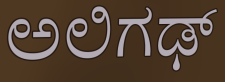
ಅಲಿಗಢ್